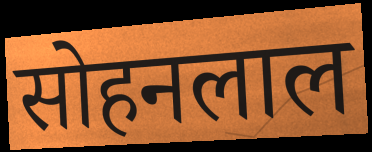
सोहनलाल